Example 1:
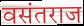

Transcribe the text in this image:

वसंतराज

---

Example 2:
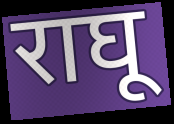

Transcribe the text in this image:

राघू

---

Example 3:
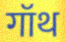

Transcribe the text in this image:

गॉथ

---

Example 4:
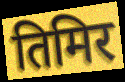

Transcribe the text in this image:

तिमिर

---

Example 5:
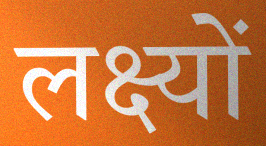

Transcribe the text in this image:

लक्ष्‍यों